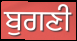
ਬੁਗਣੀ